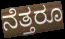
ನೆತ್ತರೂ